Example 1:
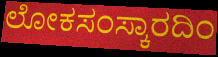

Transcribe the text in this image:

ಲೋಕಸಂಸ್ಕಾರದಿಂ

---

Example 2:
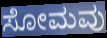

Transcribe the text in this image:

ಸೋಮವು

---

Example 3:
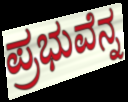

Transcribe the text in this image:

ಪ್ರಭುವೆನ್ನ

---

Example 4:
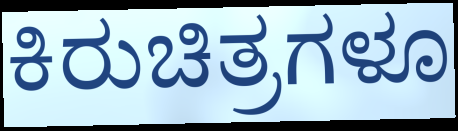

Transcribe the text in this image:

ಕಿರುಚಿತ್ರಗಳೂ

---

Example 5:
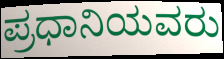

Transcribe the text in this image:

ಪ್ರಧಾನಿಯವರು